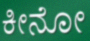
ಕೀನೋ